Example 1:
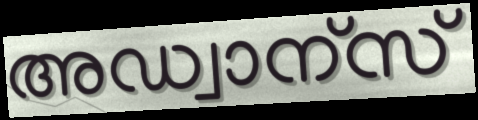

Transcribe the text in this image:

അഡ്വാന്സ്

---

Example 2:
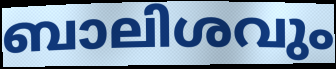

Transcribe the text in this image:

ബാലിശവും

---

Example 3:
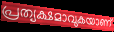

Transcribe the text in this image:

പ്രത്യക്ഷമാവുകയാണ്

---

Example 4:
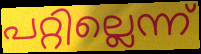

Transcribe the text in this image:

പറ്റില്ലെന്ന്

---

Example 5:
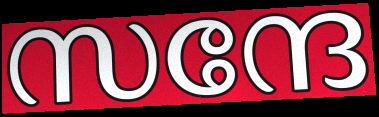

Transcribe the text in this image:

സന്ദേ